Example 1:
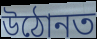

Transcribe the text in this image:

উঠোনত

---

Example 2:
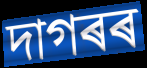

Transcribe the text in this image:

দাগৰৰ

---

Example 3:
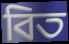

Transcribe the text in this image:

বিত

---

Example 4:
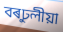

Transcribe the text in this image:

বৰঢুলীয়া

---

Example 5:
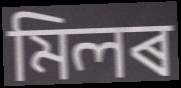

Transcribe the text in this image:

মিলৰ